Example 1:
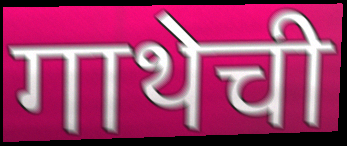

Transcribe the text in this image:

गाथेची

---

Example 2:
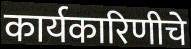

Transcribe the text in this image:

कार्यकारिणीचे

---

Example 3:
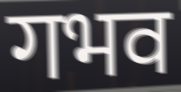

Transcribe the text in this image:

गभव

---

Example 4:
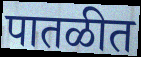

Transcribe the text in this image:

पातळीत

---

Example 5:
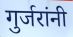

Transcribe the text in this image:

गुर्जरांनी